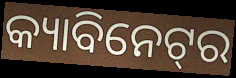
କ୍ୟାବିନେଟ୍‌ର